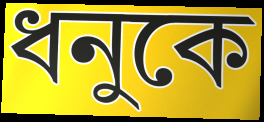
ধনুকে